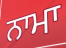
ਨਾਮਾ